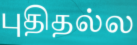
புதிதல்ல